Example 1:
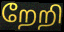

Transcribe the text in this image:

றேறி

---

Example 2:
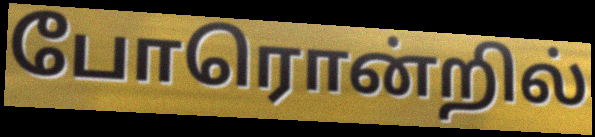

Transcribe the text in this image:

போரொன்றில்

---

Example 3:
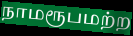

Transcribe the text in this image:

நாமரூபமற்ற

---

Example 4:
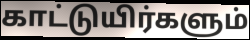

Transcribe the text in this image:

காட்டுயிர்களும்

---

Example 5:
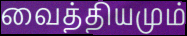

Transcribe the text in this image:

வைத்தியமும்